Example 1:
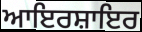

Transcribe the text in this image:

ਆਇਰਸ਼ਾਇਰ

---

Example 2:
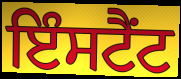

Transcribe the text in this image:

ਇੰਸਟੈਂਟ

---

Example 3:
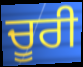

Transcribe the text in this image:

ਚੂਰੀ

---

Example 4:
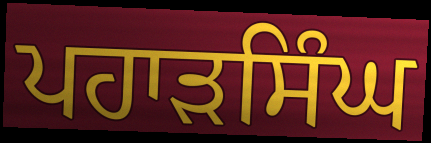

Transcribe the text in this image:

ਪਹਾੜਸਿੰਘ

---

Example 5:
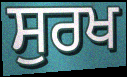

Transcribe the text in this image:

ਸੁਰਖ